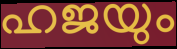
ഹജയും